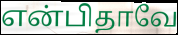
என்பிதாவே